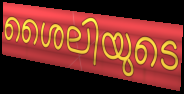
ശൈലിയുടെ